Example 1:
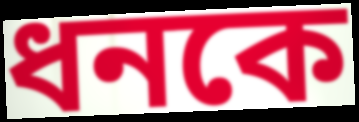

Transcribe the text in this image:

ধনকে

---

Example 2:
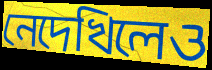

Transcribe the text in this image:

নেদেখিলেও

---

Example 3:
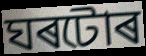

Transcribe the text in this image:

ঘৰটোৰ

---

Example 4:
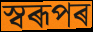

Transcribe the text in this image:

স্বৰূপৰ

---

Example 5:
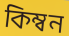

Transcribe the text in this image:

কিম্বন